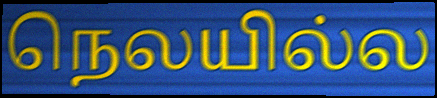
நெலயில்ல